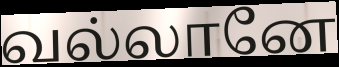
வல்லானே